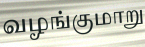
வழங்குமாறு